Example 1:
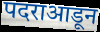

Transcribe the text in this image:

पदराआडून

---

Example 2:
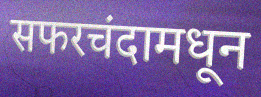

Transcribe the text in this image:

सफरचंदामधून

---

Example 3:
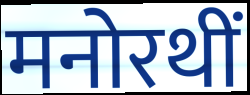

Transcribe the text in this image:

मनोरथीं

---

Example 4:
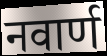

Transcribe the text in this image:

नवार्ण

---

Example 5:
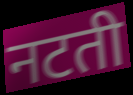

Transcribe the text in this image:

नटती